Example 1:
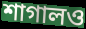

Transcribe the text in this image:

শাগালও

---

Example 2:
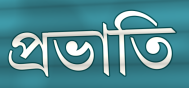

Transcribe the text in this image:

প্রভাতি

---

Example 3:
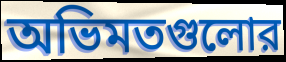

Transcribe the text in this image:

অভিমতগুলোর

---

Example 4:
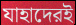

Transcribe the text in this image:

যাহাদেরই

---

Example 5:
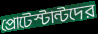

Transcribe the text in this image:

প্রোটেস্টান্টদের